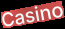
Casino